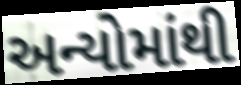
અન્યોમાંથી